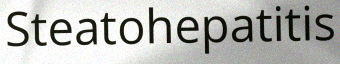
Steatohepatitis